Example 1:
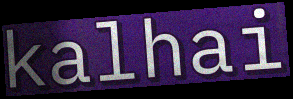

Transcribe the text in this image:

kalhai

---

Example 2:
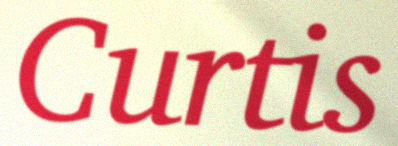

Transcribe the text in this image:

Curtis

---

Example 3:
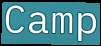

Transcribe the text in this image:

Camp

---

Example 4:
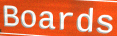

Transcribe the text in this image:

Boards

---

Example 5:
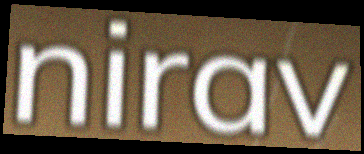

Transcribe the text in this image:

nirav